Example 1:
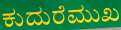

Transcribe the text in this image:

ಕುದುರೆಮುಖ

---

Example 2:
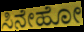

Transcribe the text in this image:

ಸಿನೇಹೋ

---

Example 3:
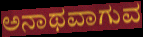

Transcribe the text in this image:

ಅನಾಥವಾಗುವ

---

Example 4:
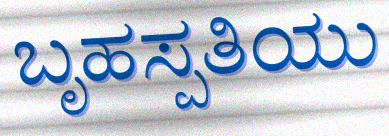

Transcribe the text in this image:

ಬೃಹಸ್ಪತಿಯು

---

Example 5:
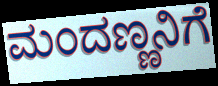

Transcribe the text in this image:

ಮಂದಣ್ಣನಿಗೆ